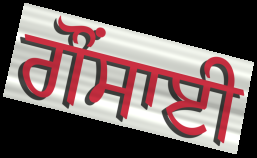
ਗੌਂਸਾਈ